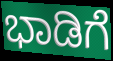
ಭಾಡಿಗೆ